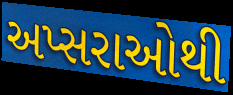
અપ્સરાઓથી